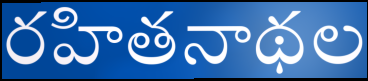
రహితనాథల